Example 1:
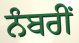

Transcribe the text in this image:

ਨੰਬਰੀਂ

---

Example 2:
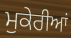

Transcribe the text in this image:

ਮੁਕੇਰੀਆਂ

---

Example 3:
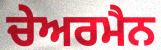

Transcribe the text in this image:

ਚੇਅਰਮੈਨ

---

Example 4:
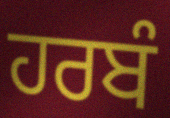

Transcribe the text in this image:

ਹਰਬੰ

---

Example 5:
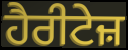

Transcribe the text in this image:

ਹੈਰੀਟੇਜ਼